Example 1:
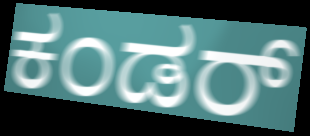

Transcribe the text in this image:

ಕಂಡರ್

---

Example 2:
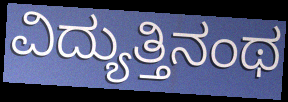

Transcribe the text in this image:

ವಿದ್ಯುತ್ತಿನಂಥ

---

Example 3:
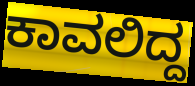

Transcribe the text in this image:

ಕಾವಲಿದ್ದ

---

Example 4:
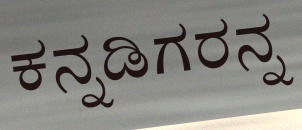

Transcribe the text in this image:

ಕನ್ನಡಿಗರನ್ನ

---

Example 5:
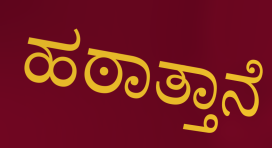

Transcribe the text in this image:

ಹಠಾತ್ತಾನೆ